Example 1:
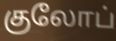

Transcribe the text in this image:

குலோப்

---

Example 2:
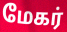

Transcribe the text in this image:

மேகர்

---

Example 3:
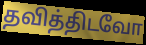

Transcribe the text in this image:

தவித்திடவோ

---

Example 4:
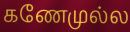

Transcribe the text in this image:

கணேமுல்ல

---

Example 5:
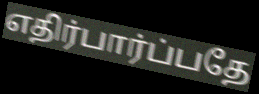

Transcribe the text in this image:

எதிர்பார்ப்பதே